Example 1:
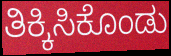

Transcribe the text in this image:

ತಿಕ್ಕಿಸಿಕೊಂಡು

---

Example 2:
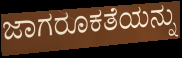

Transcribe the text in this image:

ಜಾಗರೂಕತೆಯನ್ನು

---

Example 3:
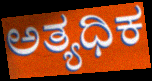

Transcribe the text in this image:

ಅತ್ಯಧಿಕ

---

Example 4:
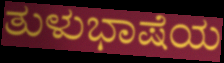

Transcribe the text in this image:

ತುಳುಭಾಷೆಯ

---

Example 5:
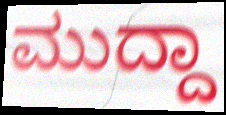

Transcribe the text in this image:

ಮುದ್ದಾ